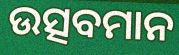
ଉତ୍ସବମାନ